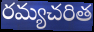
రమ్యచరిత